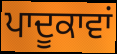
ਪਾਦੂਕਾਵਾਂ